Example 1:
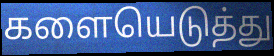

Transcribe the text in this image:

களையெடுத்து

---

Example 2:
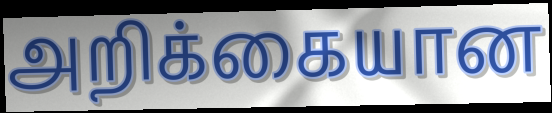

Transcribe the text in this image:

அறிக்கையான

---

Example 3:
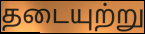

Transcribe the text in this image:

தடையுற்று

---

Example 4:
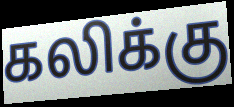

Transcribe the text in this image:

கலிக்கு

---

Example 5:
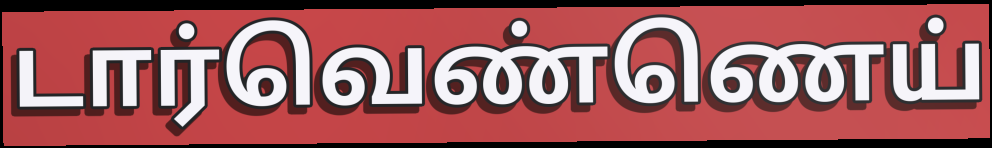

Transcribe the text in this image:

டார்வெண்ணெய்